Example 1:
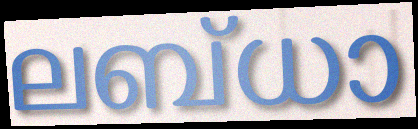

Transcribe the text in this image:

ലബ്ധാ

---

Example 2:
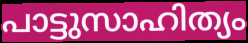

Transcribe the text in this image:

പാട്ടുസാഹിത്യം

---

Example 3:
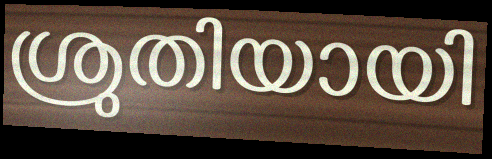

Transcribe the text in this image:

ശ്രുതിയായി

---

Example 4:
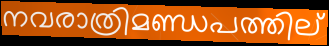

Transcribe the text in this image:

നവരാത്രിമണ്ഡപത്തില്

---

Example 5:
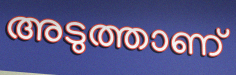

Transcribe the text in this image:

അടുത്താണ്